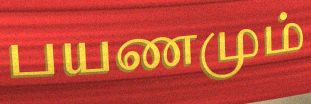
பயணமும்